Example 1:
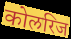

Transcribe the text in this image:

कोलरिज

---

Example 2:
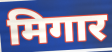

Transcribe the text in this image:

मिगार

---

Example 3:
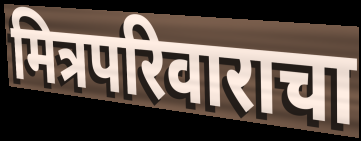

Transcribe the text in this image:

मित्रपरिवाराचा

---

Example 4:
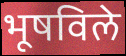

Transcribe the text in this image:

भूषविले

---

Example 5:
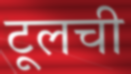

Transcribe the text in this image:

टूलची